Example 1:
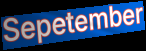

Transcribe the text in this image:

Sepetember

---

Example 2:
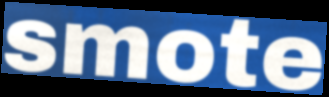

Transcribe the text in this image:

smote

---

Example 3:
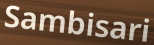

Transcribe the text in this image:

Sambisari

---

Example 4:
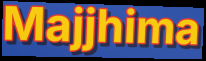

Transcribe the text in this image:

Majjhima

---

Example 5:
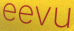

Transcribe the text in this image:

eevu